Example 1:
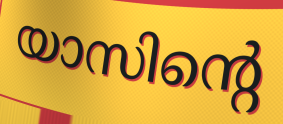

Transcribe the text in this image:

യാസിന്റെ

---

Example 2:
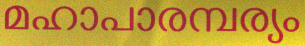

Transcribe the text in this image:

മഹാപാരമ്പര്യം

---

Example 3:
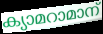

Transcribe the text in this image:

ക്യാമറാമാന്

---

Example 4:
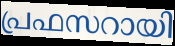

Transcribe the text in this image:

പ്രഫസറായി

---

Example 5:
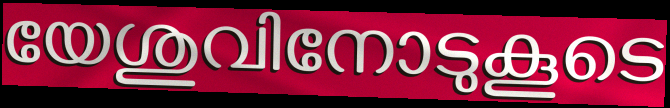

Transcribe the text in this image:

യേശുവിനോടുകൂടെ